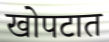
खोपटात